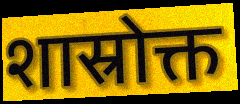
शास्रोक्त